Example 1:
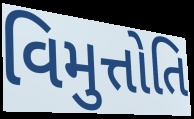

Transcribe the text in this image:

વિમુત્તોતિ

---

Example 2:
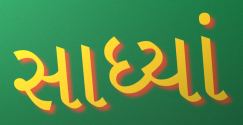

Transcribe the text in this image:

સાધ્યાં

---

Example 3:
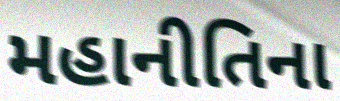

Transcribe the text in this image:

મહાનીતિના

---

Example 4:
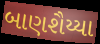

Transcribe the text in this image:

બાણશૈય્યા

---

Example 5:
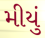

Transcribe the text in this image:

મીયું